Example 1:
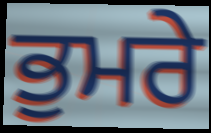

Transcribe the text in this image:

ਭੁਮਰੇ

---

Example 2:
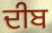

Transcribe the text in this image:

ਦੀਬ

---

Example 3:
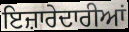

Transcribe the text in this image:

ਇਜ਼ਾਰੇਦਾਰੀਆਂ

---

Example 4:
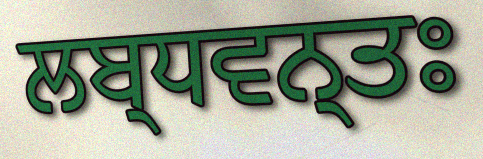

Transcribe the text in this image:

ਲਬ੍ਧਵਨ੍ਤਃ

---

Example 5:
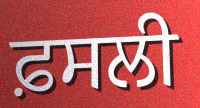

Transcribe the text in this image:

ਫ਼ਸਲੀ